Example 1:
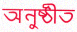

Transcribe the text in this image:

অনুষ্ঠীত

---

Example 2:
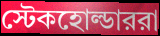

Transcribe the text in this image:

স্টেকহোল্ডাররা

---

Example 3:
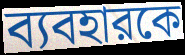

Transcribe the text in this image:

ব্যবহারকে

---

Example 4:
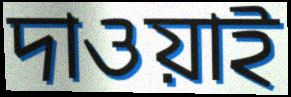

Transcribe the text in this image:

দাওয়াই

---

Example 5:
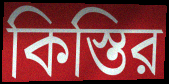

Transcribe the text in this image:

কিস্তির